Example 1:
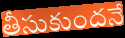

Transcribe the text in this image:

తీసుకుందనే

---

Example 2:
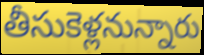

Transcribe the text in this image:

తీసుకెళ్లనున్నారు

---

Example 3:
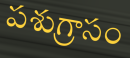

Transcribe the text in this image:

పశుగ్రాసం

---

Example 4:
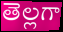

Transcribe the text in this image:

తెల్లగా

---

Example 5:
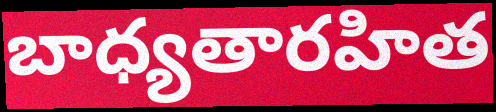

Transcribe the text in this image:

బాధ్యతారహిత